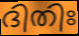
ദിതിഃ